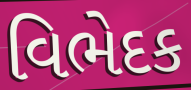
વિભેદક